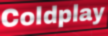
Coldplay